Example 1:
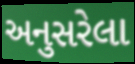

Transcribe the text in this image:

અનુસરેલા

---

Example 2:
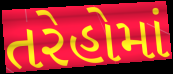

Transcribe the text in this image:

તરેહોમાં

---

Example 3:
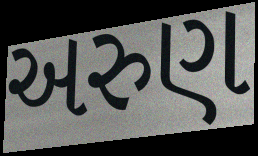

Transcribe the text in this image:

અરુણ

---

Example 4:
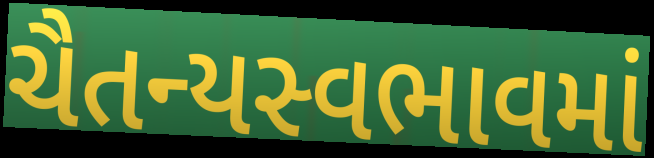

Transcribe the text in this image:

ચૈતન્યસ્વભાવમાં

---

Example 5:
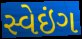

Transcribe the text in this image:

સ્વેઇંગ